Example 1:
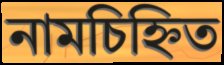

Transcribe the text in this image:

নামচিহ্নিত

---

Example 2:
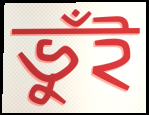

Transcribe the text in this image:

ভুঁই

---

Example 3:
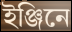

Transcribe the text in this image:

ইঞ্জিনে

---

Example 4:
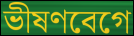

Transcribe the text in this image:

ভীষণবেগে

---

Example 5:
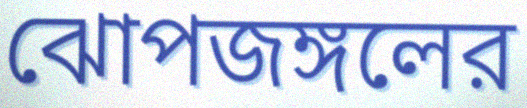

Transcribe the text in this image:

ঝোপজঙ্গলের